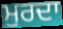
ਮੁਰਦਾ